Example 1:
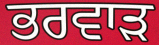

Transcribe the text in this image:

ਭਰਵਾੜ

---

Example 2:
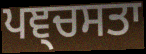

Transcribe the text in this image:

ਪਞ੍ਚਸਤਾ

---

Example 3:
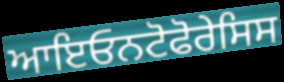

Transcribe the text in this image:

ਆਇਓਨਟੋਫੋਰੇਸਿਸ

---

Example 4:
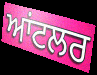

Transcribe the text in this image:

ਆਂਟਲਰ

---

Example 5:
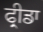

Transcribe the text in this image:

ਫ੍ਰੀਡਾ